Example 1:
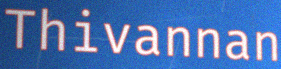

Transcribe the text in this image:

Thivannan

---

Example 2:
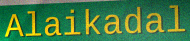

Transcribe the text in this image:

Alaikadal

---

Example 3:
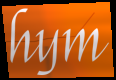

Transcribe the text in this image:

hym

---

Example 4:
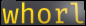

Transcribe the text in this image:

whorl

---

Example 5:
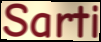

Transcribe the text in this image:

Sarti